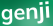
genji